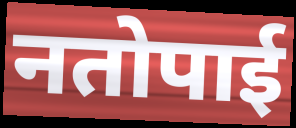
नतोपाई